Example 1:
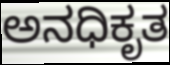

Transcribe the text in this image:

ಅನಧಿಕೃತ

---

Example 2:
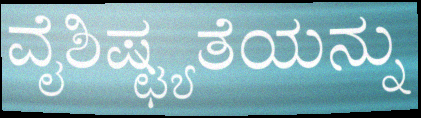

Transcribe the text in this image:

ವೈಶಿಷ್ಟ್ಯತೆಯನ್ನು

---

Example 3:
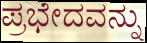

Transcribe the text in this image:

ಪ್ರಭೇದವನ್ನು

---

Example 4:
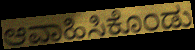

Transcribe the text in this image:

ಆವಾಹಿಸಿಕೊಂಡು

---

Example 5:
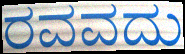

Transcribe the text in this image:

ರವವದು